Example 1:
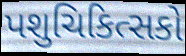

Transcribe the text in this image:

પશુચિકિત્સકો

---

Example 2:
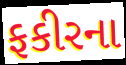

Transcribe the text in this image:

ફકીરના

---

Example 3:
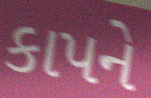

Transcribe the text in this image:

કાપને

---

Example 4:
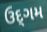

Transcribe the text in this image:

ઉદ્‌ગમ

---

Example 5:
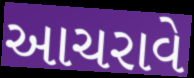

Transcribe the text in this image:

આચરાવે